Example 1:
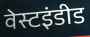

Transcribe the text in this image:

वेस्टइंडीड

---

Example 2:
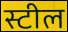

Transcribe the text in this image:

स्टील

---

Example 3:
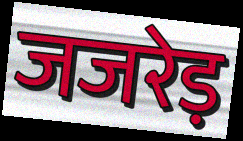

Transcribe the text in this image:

जजरेड़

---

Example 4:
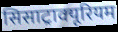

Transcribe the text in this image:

सिसाट्राक्यूरियम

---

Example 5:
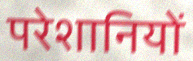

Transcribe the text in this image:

परेशानियों